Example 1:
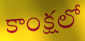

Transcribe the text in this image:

కాంక్షలో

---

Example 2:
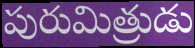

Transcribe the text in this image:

పురుమిత్రుడు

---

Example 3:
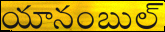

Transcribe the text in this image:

యానంబుల్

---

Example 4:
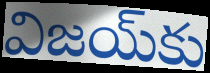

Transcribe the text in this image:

విజయ్‌కు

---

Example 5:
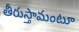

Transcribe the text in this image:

తీరుస్తామంటూ